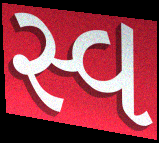
સ્વ